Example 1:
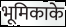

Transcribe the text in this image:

भूमिकाके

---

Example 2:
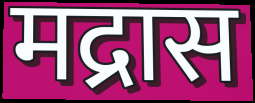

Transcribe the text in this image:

मद्रास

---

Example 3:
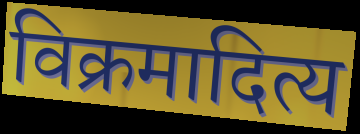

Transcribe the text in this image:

विक्रमादित्य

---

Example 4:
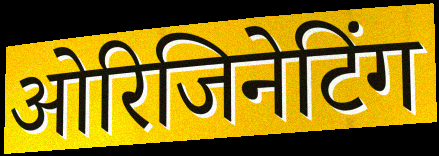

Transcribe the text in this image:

ओरिजिनेटिंग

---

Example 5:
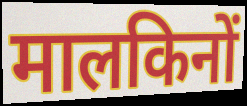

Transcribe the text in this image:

मालकिनों